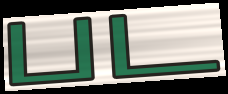
பட